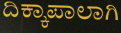
ದಿಕ್ಕಾಪಾಲಾಗಿ